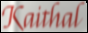
Kaithal